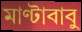
মাণ্টাবাবু